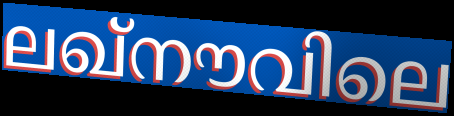
ലഖ്നൗവിലെ